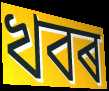
খবৰ